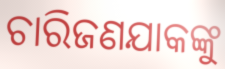
ଚାରିଜଣଯାକଙ୍କୁ